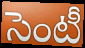
సెంటీ